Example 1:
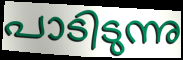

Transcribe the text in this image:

പാടിടുന്നു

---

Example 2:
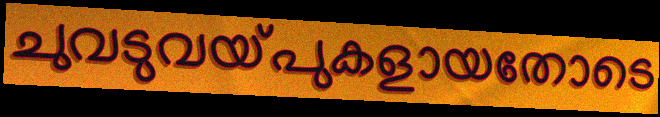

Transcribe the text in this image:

ചുവടുവയ്‌പുകളായതോടെ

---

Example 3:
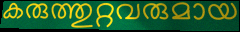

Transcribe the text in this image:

കരുത്തുറ്റവരുമായ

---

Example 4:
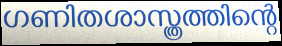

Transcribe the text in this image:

ഗണിതശാസ്ത്രത്തിന്റെ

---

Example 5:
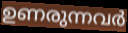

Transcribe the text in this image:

ഉണരുന്നവർ